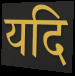
यदि